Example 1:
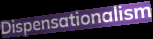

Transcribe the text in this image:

Dispensationalism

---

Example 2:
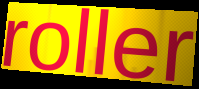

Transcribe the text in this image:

roller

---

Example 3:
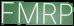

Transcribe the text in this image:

FMRP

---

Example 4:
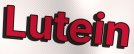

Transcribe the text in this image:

Lutein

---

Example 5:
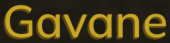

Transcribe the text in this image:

Gavane